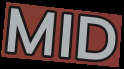
MID